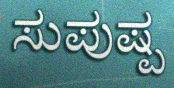
ಸುಪುಷ್ಪ